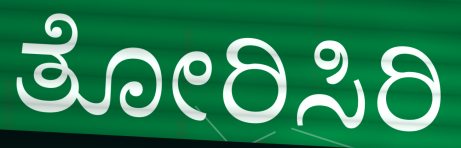
ತೋರಿಸಿರಿ